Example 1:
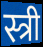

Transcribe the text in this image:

स्त्री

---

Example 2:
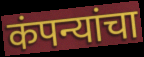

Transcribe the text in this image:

कंपन्यांचा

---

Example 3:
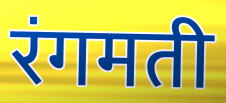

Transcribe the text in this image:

रंगमती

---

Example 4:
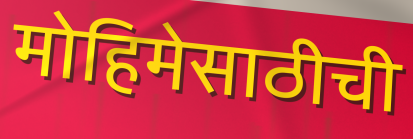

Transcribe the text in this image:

मोहिमेसाठीची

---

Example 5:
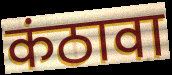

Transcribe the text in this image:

कंठावा